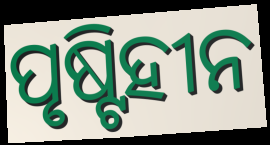
ପୃଷ୍ଟିହୀନ